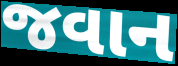
જવાન